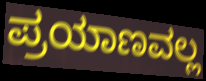
ಪ್ರಯಾಣವಲ್ಲ